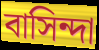
বাসিন্দা